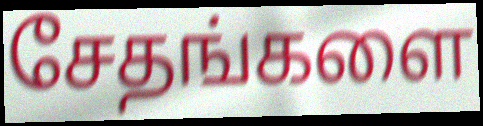
சேதங்களை